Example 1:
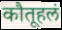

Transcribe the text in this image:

कौतूहलं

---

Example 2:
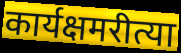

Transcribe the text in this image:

कार्यक्षमरीत्या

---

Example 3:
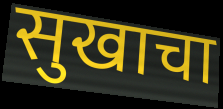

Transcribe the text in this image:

सुखाचा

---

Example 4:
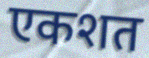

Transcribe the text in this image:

एकशत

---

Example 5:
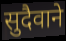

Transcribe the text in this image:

सुदैवाने